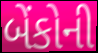
બેંકોની